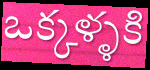
ఒక్కళ్ళకి